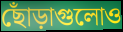
ছোঁড়াগুলোও